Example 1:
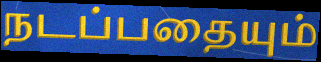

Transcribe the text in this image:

நடப்பதையும்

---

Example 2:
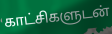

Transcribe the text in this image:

காட்சிகளுடன்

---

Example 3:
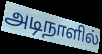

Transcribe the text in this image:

அடிநாளில்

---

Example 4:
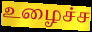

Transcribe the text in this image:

உழைச்ச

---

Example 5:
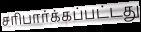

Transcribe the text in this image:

சரிபார்க்கப்பட்டது